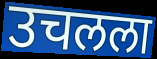
उचलला